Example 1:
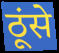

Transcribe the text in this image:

ठूंसे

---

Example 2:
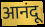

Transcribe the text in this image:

आनंदू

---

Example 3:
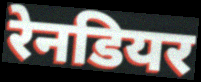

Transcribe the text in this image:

रेनडियर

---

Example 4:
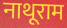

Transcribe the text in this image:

नाथूराम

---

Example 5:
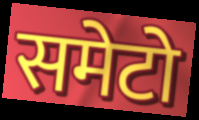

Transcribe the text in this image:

समेटो